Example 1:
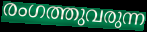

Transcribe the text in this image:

രംഗത്തുവരുന്ന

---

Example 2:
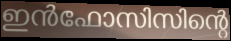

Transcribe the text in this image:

ഇൻഫോസിസിന്റെ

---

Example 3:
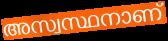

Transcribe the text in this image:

അസ്വസ്ഥനാണ്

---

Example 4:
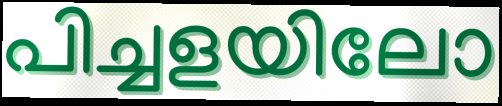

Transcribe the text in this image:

പിച്ചളയിലോ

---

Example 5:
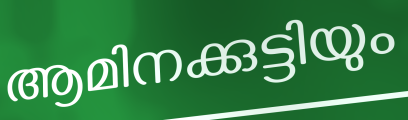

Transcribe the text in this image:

ആമിനക്കുട്ടിയും